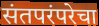
संतपरंपरेचा